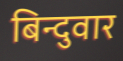
बिन्‍दुवार